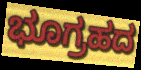
ಭೂಗ್ರಹದ